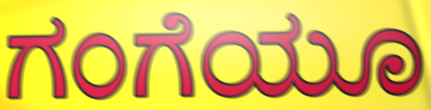
ಗಂಗೆಯೂ